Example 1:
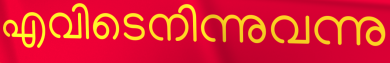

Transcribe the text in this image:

എവിടെനിന്നുവന്നു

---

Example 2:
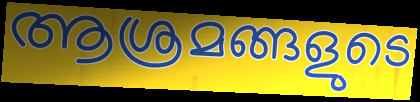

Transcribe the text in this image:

ആശ്രമങ്ങളുടെ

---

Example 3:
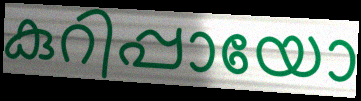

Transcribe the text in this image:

കുറിപ്പായോ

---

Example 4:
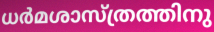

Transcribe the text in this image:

ധർമശാസ്ത്രത്തിനു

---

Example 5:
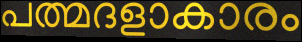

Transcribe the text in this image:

പത്മദളാകാരം